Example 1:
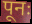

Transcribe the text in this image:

पूनः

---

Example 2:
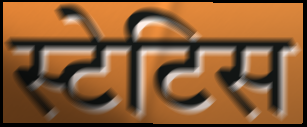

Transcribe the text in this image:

स्टेटिस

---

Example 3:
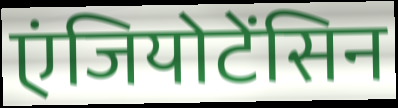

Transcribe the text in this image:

एंजियोटेंसिन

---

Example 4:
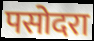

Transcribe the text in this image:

पसोदरा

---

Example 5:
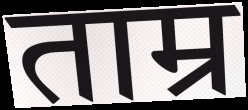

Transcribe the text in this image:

ताम्र